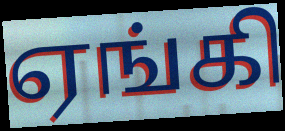
ஏங்கி